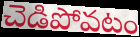
చెడిపోవటం